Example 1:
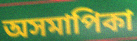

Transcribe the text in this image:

অসমাপিকা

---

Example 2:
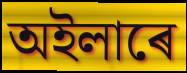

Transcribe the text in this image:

অইলাৰে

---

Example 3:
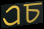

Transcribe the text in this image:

এচ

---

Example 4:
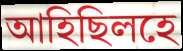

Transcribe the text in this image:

আহিছিলহে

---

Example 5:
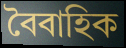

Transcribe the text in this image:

বৈবাহিক